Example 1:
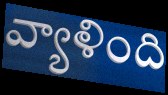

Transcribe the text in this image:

వ్యాళింది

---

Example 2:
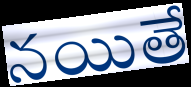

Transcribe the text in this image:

నయితే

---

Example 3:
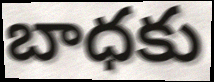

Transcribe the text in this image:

బాధకు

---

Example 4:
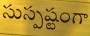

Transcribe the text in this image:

సుస్పష్టంగా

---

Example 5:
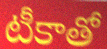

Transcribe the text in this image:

టీకాతో